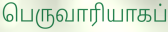
பெருவாரியாகப்